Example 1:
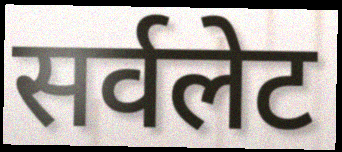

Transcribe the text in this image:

सर्वलेट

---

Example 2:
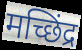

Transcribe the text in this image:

मच्छिंद्र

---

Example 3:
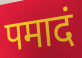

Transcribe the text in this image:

पमादं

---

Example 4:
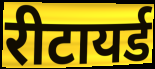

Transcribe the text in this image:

रीटायर्ड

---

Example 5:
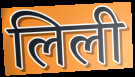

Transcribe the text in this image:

लिली